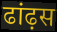
ढांढ़स